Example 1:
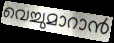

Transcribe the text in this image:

വെച്ചുമാറാൻ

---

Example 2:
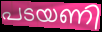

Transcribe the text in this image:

പടയണി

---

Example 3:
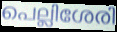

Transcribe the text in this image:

പെല്ലിശേരി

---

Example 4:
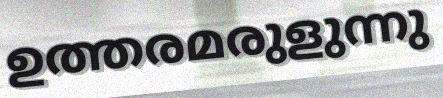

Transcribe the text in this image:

ഉത്തരമരുളുന്നു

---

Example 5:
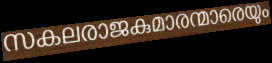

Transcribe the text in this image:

സകലരാജകുമാരന്മാരെയും